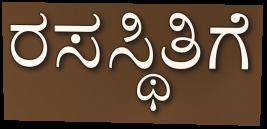
ರಸಸ್ಥಿತಿಗೆ